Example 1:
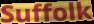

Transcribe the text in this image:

Suffolk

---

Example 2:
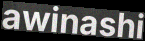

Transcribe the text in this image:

awinashi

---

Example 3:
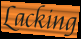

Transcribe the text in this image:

Lacking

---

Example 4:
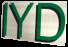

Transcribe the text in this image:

IYD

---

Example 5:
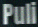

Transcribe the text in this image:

Puli